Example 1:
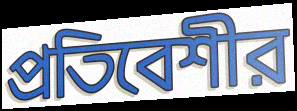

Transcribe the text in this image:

প্রতিবেশীর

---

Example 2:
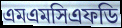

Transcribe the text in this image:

এমএমসিএফডি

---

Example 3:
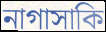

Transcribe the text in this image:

নাগাসাকি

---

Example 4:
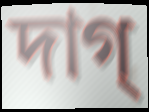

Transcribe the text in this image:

দাগ্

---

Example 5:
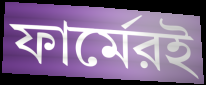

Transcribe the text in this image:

ফার্মেরই